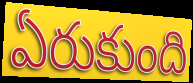
ఏరుకుంది